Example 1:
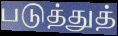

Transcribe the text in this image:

படுத்துத்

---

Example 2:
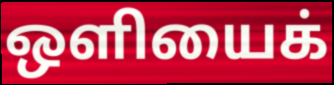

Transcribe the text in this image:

ஒளியைக்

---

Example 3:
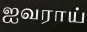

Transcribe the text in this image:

ஐவராய்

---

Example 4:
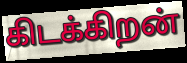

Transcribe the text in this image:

கிடக்கிறன்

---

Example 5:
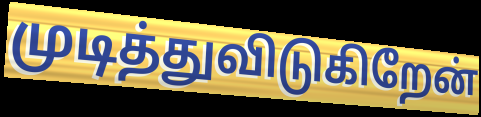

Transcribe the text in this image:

முடித்துவிடுகிறேன்